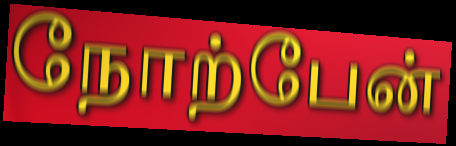
நோற்பேன்